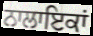
ਨਾਲਾਇਕਾਂ